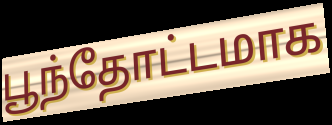
பூந்தோட்டமாக